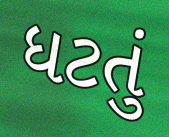
ધટતું